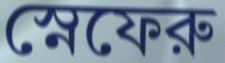
স্নেফেরু